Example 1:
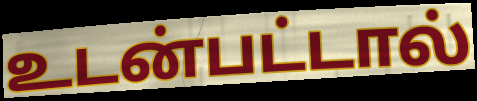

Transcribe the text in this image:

உடன்பட்டால்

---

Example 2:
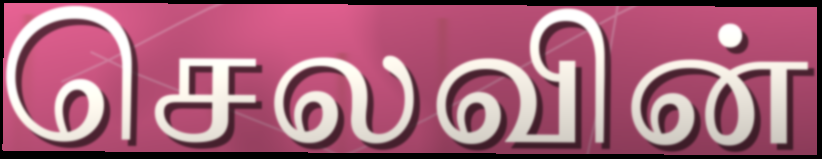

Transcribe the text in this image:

செலவின்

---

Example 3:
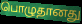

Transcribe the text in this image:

பொழுதானது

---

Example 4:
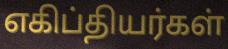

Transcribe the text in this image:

எகிப்தியர்கள்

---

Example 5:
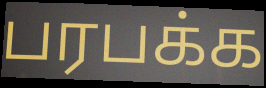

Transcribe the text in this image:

பரபக்க